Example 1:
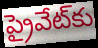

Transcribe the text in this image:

ప్రైవేట్‌కు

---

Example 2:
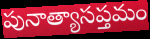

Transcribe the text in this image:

పునాత్యాసప్తమం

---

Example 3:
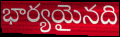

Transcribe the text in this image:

భార్యయైనది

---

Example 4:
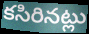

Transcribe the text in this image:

కసిరినట్లు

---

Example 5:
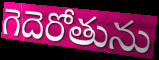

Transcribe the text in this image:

గెదెరోతును